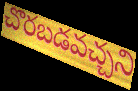
చొరబడవచ్చని